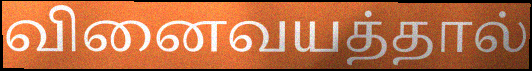
வினைவயத்தால்